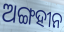
ଅଙ୍ଗହୀନ